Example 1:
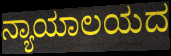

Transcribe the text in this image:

ನ್ಯಾಯಾಲಯದ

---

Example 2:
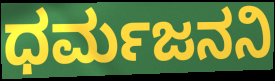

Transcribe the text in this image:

ಧರ್ಮಜನನಿ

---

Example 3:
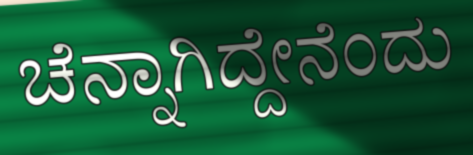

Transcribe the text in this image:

ಚೆನ್ನಾಗಿದ್ದೇನೆಂದು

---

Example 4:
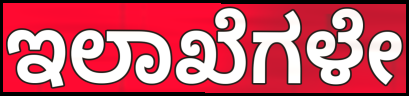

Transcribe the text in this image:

ಇಲಾಖೆಗಳೇ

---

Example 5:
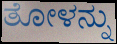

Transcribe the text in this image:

ತೋಳನ್ನು